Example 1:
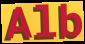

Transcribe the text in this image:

Alb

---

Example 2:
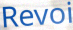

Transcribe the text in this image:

Revoi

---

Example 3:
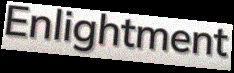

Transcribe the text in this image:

Enlightment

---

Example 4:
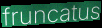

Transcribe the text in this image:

fruncatus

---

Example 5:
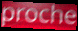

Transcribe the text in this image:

proche